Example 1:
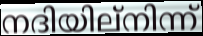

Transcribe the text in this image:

നദിയില്നിന്ന്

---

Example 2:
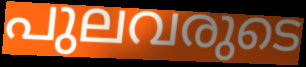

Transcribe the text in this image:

പുലവരുടെ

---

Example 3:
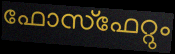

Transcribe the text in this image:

ഫോസ്ഫേറ്റും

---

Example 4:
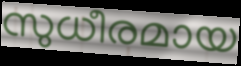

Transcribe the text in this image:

സുധീരമായ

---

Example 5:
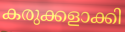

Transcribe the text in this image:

കരുക്കളാക്കി